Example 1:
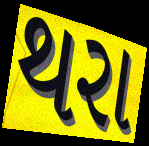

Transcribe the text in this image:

થરા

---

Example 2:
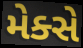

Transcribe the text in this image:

મેક્સે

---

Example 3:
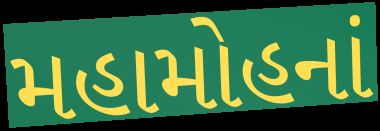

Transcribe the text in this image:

મહામોહનાં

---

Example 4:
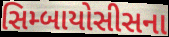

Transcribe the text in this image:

સિમ્બાયોસીસના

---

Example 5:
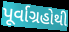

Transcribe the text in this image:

પૂર્વાગ્રહોથી